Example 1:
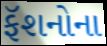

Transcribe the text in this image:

ફૅશનોના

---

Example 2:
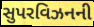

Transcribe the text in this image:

સુપરવિઝનની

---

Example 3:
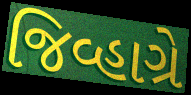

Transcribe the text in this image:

જિવ્હાગ્રે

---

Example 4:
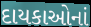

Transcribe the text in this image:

દાયકાઓનાં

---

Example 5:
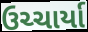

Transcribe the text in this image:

ઉચ્ચાર્યા